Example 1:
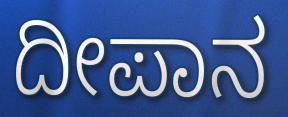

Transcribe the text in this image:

ದೀಪಾನ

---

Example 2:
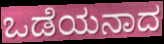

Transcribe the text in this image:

ಒಡೆಯನಾದ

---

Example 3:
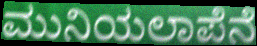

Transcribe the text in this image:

ಮುನಿಯಲಾಪೆನೆ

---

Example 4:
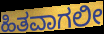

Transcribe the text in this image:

ಹಿತವಾಗಲೀ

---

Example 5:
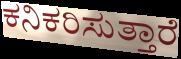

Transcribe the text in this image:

ಕನಿಕರಿಸುತ್ತಾರೆ